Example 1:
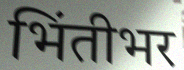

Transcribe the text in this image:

भिंतीभर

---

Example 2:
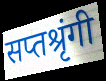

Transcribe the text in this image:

सप्तश्रृंगी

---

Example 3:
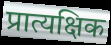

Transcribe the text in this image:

प्रात्यक्षिक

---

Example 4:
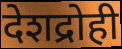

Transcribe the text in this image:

देशद्रोही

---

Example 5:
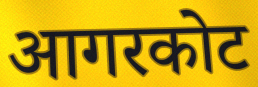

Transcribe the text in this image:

आगरकोट